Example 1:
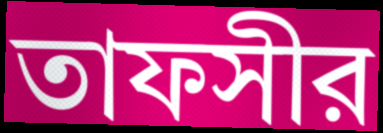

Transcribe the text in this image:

তাফসীর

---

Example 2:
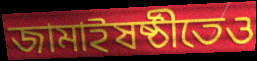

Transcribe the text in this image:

জামাইষষ্ঠীতেও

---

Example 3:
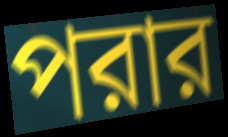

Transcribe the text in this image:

পরার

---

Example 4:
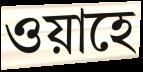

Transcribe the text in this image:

ওয়াহে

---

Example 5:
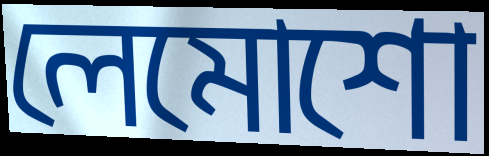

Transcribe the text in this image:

লেমোশো